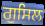
ਗੁਸਿਲ